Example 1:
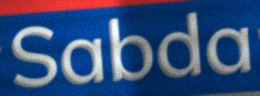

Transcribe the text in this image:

Sabda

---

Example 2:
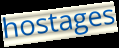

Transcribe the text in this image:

hostages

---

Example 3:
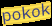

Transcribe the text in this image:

pokok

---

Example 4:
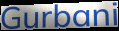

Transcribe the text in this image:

Gurbani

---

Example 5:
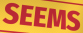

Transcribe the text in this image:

SEEMS